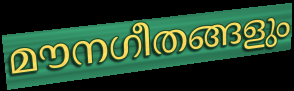
മൗനഗീതങ്ങളും